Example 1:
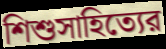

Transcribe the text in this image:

শিশুসাহিত্যের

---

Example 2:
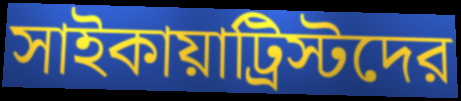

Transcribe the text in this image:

সাইকায়াট্রিস্টদের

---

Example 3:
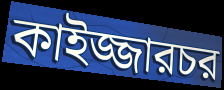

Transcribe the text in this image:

কাইজ্জারচর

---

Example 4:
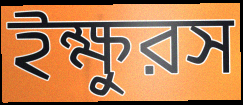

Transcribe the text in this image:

ইক্ষুরস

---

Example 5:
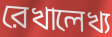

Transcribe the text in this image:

রেখালেখ্য